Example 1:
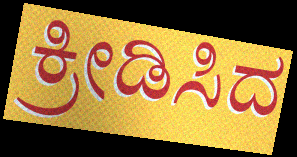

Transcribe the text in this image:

ಕ್ರೀಡಿಸಿದ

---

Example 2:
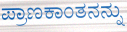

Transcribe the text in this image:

ಪ್ರಾಣಕಾಂತನನ್ನು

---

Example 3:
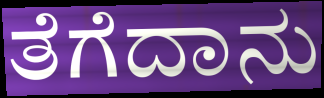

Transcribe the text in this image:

ತೆಗೆದಾನು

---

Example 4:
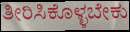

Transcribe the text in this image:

ತೀರಿಸಿಕೊಳ್ಳಬೇಕು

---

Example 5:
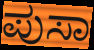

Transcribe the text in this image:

ಪುಸಾ